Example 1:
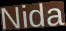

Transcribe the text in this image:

Nida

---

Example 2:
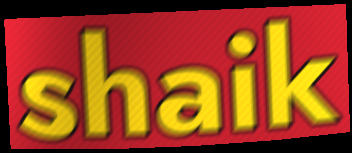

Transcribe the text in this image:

shaik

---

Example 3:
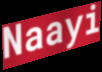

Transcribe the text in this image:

Naayi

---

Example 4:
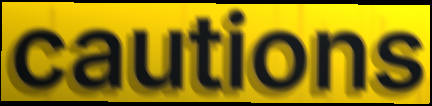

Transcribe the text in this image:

cautions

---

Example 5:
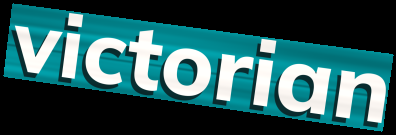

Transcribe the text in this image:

victorian